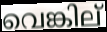
വെങ്കില്